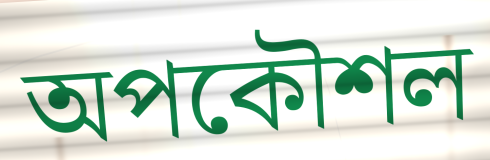
অপকৌশল